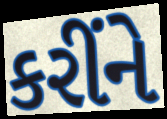
કરીંને